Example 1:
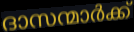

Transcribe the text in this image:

ദാസന്മാർക്ക്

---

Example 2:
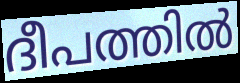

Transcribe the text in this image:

ദീപത്തിൽ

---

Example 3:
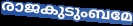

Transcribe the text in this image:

രാജകുടുംബമേ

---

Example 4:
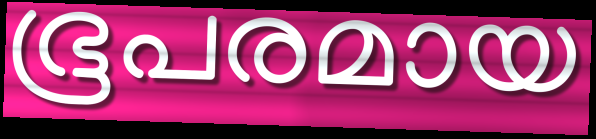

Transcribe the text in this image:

ഭൂപരമായ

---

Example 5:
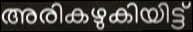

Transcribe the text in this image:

അരികഴുകിയിട്ട്